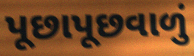
પૂછાપૂછવાળું